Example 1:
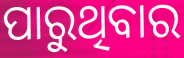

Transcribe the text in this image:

ପାରୁଥିବାର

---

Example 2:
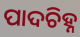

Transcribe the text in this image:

ପାଦଚିହ୍ନ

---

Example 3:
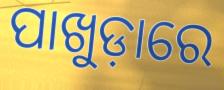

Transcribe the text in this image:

ପାଖୁଡ଼ାରେ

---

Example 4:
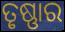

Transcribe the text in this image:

ତୃଷ୍ଣାର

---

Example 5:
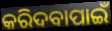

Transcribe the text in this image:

କରିଦବାପାଇଁ